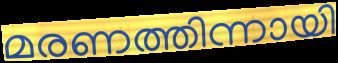
മരണത്തിന്നായി